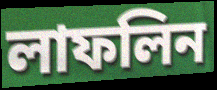
লাফলিন